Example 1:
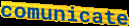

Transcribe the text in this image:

comunicate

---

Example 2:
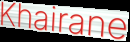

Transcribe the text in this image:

Khairane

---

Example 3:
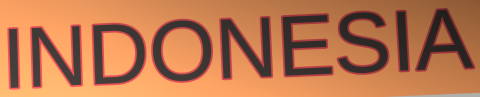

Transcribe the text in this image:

INDONESIA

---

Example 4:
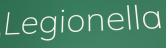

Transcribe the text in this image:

Legionella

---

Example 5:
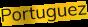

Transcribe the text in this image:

Portuguez